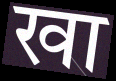
खा